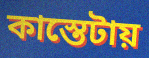
কাস্তেটায়